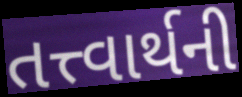
તત્ત્વાર્થની